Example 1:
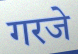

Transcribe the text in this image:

गरजे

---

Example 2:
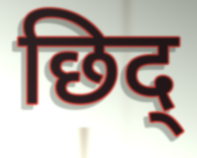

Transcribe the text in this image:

छिद्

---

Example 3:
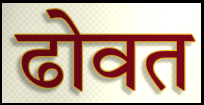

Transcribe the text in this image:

ढोवत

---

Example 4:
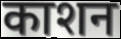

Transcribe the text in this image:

काशन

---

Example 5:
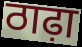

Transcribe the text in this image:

ठाढ़ा